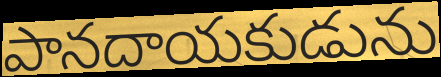
పానదాయకుడును